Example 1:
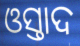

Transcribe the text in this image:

ଓସ୍ତାଦ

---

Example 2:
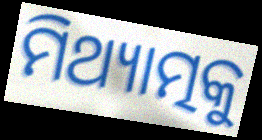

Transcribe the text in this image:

ମିଥ୍ୟାତ୍ମକୁ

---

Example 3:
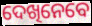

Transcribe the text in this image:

ଦେଖିନେବେ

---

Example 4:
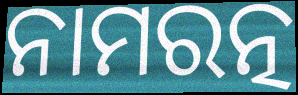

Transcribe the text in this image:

ନାମରତ୍ନ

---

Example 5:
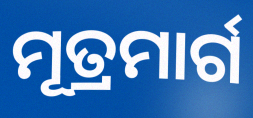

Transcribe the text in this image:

ମୂତ୍ରମାର୍ଗ